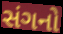
સંગનો